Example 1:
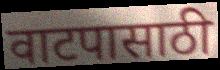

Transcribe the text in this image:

वाटपासाठी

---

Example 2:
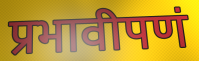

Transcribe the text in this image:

प्रभावीपणं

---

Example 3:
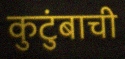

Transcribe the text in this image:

कुटुंबाची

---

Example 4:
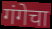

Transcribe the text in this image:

गंगेचा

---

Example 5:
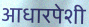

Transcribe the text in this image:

आधारपेशी